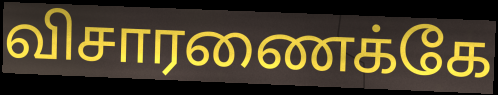
விசாரணைக்கே